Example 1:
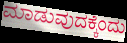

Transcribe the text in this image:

ಮಾಡುವುದಕ್ಕೆಂದು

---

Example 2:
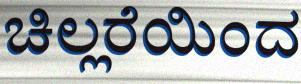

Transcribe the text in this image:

ಚಿಲ್ಲರೆಯಿಂದ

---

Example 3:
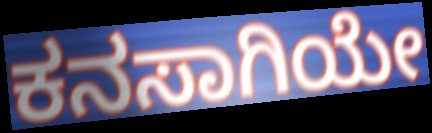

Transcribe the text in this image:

ಕನಸಾಗಿಯೇ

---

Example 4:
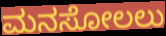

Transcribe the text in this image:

ಮನಸೋಲಲು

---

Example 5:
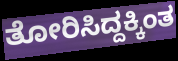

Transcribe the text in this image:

ತೋರಿಸಿದ್ದಕ್ಕಿಂತ